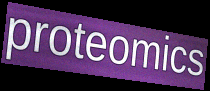
proteomics